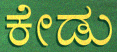
ಕೇಡು